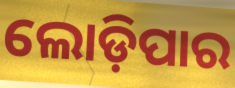
ଲୋଡ଼ିପାର